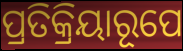
ପ୍ରତିକ୍ରିୟାରୂପେ